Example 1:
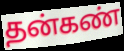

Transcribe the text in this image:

தன்கண்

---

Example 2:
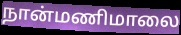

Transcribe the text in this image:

நான்மணிமாலை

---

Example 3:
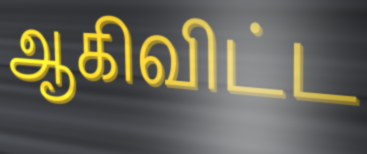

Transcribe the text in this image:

ஆகிவிட்ட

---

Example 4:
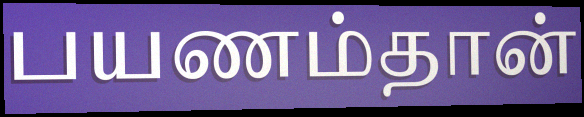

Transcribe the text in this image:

பயணம்தான்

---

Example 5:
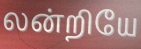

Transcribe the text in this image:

லன்றியே